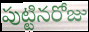
పుట్టినరోజు